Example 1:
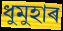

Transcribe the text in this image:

ধুমুহাৰ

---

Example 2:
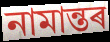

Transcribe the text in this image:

নামান্তৰ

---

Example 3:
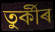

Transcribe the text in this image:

তুৰ্কীৰ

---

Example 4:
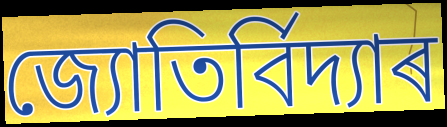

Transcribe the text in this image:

জ্যোতিৰ্বিদ্যাৰ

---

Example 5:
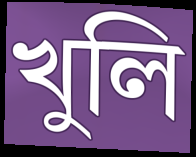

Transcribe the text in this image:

খুলি